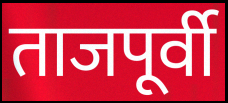
ताजपूर्वी